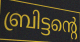
ബ്രിട്ടന്റെ